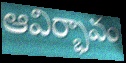
ఆవిర్భావం